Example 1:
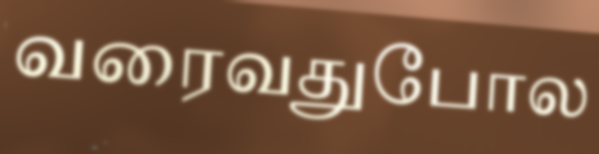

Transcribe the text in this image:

வரைவதுபோல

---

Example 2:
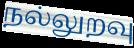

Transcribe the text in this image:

நல்லுறவு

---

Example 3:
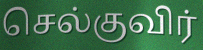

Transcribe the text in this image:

செல்குவிர்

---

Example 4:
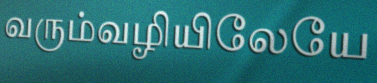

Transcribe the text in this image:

வரும்வழியிலேயே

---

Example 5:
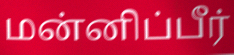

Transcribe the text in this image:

மன்னிப்பீர்